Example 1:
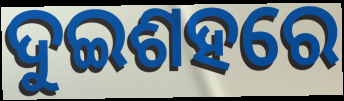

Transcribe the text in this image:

ଦୁଇଶହରେ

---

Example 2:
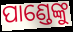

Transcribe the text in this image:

ପାଣ୍ଡେଙ୍କୁ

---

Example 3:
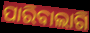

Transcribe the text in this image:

ପାରିବାଲାଗି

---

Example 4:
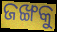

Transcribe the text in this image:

ଜଙ୍ଖକୁ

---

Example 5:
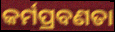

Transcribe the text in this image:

କର୍ମପ୍ରବଣତା